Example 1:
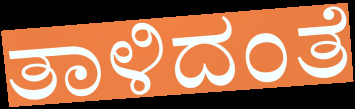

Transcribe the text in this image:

ತಾಳಿದಂತೆ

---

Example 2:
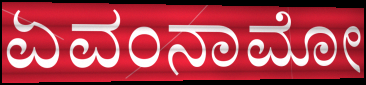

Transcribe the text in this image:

ಏವಂನಾಮೋ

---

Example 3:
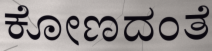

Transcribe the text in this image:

ಕೋಣದಂತೆ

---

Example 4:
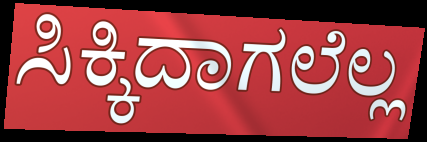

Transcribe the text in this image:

ಸಿಕ್ಕಿದಾಗಲೆಲ್ಲ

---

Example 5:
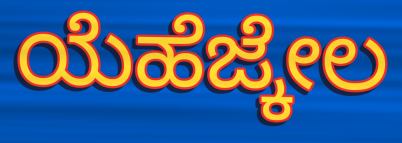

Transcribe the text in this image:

ಯೆಹೆಜ್ಕೇಲ